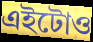
এইটোও